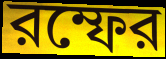
রম্ফের